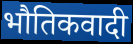
भौतिकवादी